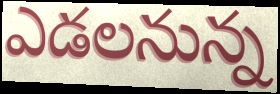
ఎడలనున్న